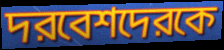
দরবেশদেরকে